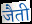
जैती